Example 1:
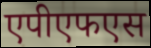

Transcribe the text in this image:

एपीएफएस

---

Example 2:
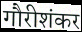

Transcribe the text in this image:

गौरीशंकर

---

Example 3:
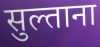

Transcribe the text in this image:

सुल्ताना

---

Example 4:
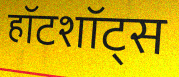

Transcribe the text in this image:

हॉटशॉट्स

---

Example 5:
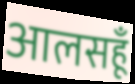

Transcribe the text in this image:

आलसहूँ